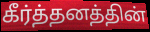
கீர்த்தனத்தின்